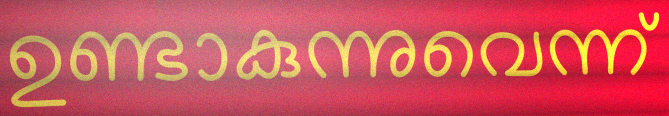
ഉണ്ടാകുന്നുവെന്ന്